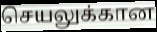
செயலுக்கான